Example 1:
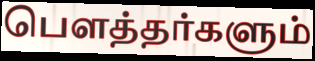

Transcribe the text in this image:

பௌத்தர்களும்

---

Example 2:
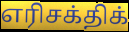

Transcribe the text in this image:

எரிசக்திக்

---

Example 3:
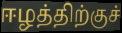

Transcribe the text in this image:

ஈழத்திற்குச்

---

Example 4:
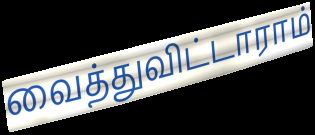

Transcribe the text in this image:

வைத்துவிட்டாராம்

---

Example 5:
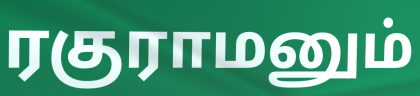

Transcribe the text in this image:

ரகுராமனும்